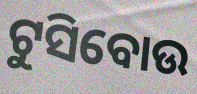
ଟୁସିବୋଉ